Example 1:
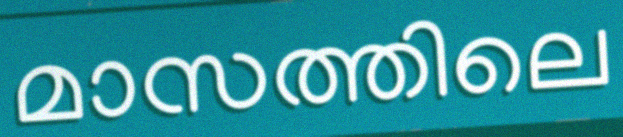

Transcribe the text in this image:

മാസത്തിലെ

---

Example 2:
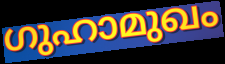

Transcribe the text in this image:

ഗുഹാമുഖം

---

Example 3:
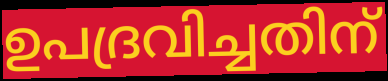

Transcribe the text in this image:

ഉപദ്രവിച്ചതിന്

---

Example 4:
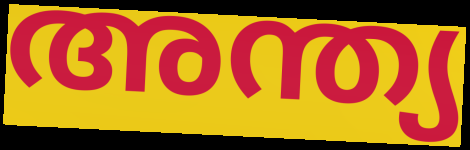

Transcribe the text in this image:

അന്ത്യ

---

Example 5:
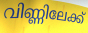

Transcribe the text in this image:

വിണ്ണിലേക്ക്